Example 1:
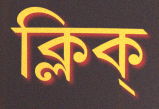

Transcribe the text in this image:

ক্লিক্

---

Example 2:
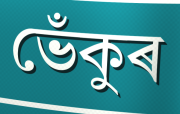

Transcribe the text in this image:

ভেঁকুৰ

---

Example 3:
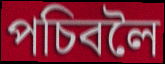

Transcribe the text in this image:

পচিবলৈ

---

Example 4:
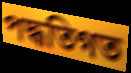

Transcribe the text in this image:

পদ্ধতিগত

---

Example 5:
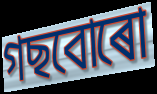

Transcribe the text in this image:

গছবোৰো